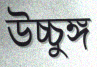
উচ্চুঙ্গ